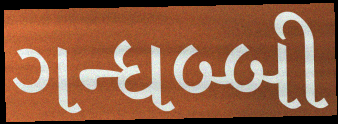
ગન્ધબ્બી